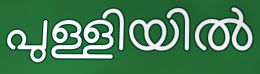
പുള്ളിയിൽ